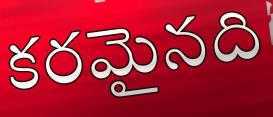
కరమైనది